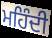
ਮਹਿੰਦੀ